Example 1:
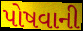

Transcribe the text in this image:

પોષવાની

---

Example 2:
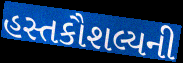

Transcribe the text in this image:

હસ્તકૌશલ્યની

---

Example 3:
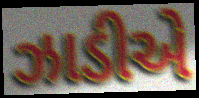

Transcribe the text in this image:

ઝાડીએ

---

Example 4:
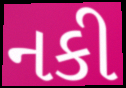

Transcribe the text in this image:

નકી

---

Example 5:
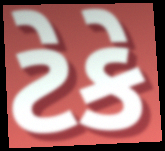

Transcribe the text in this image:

ટેકે